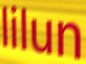
lilun